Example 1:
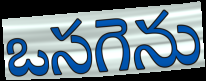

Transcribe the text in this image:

ఒసగెను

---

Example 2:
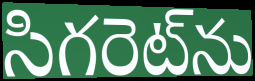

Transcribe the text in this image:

సిగరెట్‌ను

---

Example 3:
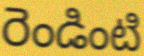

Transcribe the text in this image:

రెండింటి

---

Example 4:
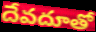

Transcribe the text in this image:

దేవదూతో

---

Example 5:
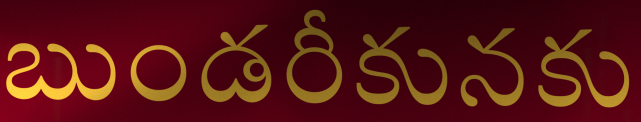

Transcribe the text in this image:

బుండరీకునకు